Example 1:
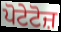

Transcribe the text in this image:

ਪੋਟੇਟੋਜ਼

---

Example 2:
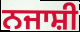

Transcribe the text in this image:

ਨਜਾਸ਼ੀ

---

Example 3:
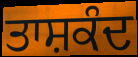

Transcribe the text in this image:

ਤਾਸ਼ਕੰਦ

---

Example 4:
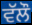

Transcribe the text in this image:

ਵੱਲੌ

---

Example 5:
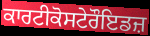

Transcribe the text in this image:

ਕਾਰਟੀਕੋਸਟੇਰੌਇਡਜ਼